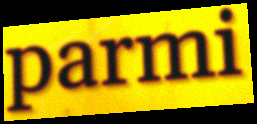
parmi